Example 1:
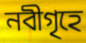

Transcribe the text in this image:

নবীগৃহে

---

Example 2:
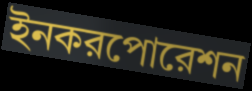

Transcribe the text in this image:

ইনকরপোরেশন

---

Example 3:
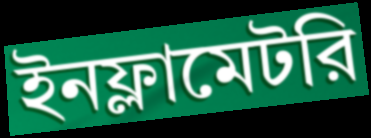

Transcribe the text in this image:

ইনফ্লামেটরি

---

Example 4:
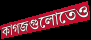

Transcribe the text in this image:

কাগজগুলোতেও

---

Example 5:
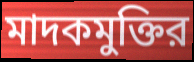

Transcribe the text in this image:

মাদকমুক্তির